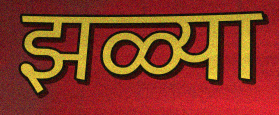
झळ्या